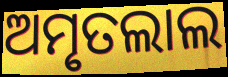
ଅମୃତଲାଲ